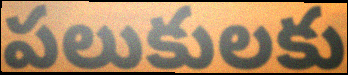
పలుకులకు